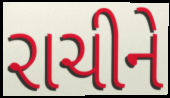
રાચીને